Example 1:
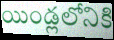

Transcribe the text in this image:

యిండ్లలోనికి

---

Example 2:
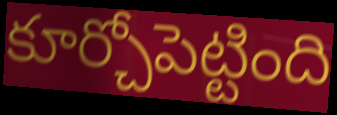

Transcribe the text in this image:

కూర్చోపెట్టింది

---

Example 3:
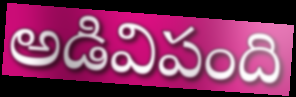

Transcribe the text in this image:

అడివిపంది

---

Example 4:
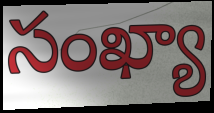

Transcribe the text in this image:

సంఖ్యా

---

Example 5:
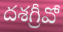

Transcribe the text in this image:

దశగ్రీవో